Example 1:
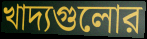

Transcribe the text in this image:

খাদ্যগুলোর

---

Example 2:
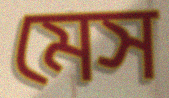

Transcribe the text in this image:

মেস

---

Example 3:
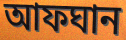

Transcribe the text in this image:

আফঘান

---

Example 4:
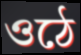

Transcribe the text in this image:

ওঠে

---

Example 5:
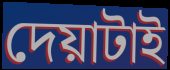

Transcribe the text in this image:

দেয়াটাই